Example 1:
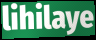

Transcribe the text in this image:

lihilaye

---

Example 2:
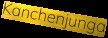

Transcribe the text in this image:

Kanchenjunga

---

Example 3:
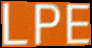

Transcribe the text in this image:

LPE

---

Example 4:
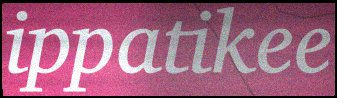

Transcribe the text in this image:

ippatikee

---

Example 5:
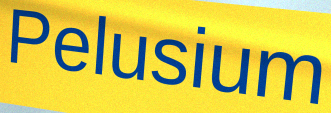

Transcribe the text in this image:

Pelusium